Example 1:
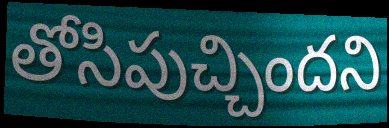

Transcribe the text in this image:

తోసిపుచ్చిందని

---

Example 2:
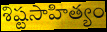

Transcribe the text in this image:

శిష్టసాహిత్యం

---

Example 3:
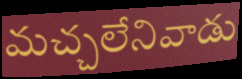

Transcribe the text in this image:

మచ్చలేనివాడు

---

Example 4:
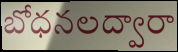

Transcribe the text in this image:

బోధనలద్వారా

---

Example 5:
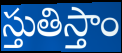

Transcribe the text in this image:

స్తుతిస్తాం